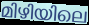
മിഴിയിലെ